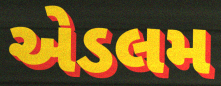
એડલમ